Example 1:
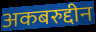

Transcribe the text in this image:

अकबरुद्दीन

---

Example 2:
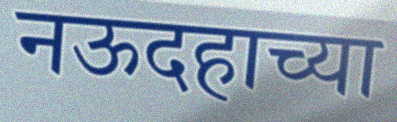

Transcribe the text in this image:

नऊदहाच्या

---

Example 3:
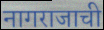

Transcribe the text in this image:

नागराजाची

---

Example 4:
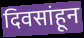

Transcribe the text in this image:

दिवसांहून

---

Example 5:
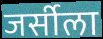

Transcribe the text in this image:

जर्सीला